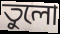
তুলো